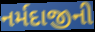
નર્મદાજીની